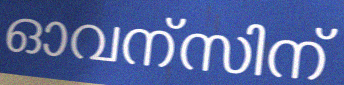
ഓവന്സിന്